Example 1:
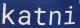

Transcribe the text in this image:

katni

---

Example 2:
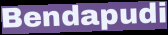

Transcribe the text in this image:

Bendapudi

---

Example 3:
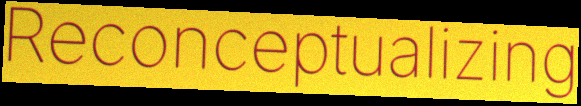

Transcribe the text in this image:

Reconceptualizing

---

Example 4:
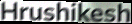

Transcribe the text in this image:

Hrushikesh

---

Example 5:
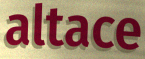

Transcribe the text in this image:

altace